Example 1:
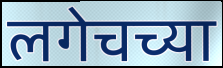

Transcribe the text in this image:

लगेचच्या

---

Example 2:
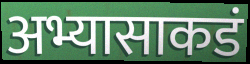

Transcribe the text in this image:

अभ्यासाकडं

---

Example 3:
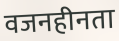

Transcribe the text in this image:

वजनहीनता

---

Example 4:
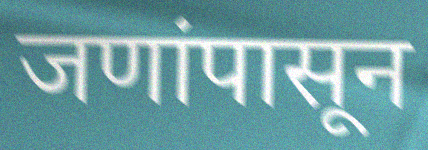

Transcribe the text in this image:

जणांपासून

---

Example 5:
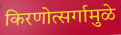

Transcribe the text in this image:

किरणोत्सर्गामुळे